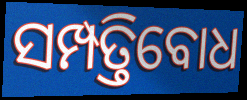
ସମ୍ପତ୍ତିବୋଧ